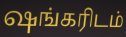
ஷங்கரிடம்